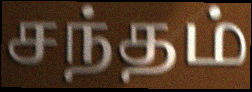
சந்தம்